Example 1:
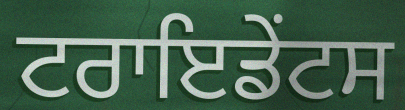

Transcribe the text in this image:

ਟਰਾਇਡੇਂਟਸ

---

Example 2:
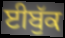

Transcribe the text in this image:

ਈਬੁੱਕ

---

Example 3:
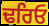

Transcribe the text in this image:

ਢਰਿਓ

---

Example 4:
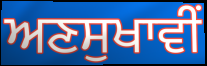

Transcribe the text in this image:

ਅਣਸੁਖਾਵੀਂ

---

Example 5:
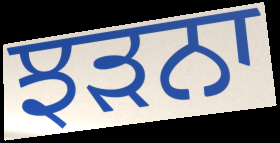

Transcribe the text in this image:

ਝੜਨਾ